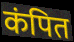
कंपित